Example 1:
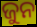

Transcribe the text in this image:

ଜୁନ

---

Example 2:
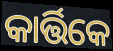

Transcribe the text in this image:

କାର୍ତ୍ତିକେ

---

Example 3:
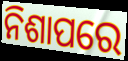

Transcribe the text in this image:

ନିଶାପରେ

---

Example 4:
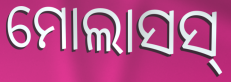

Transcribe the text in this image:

ମୋଲାସସ୍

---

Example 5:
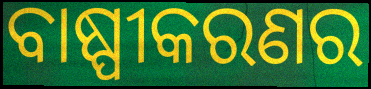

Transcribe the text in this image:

ବାଷ୍ପୀକରଣର